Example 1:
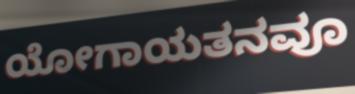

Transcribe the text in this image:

ಯೋಗಾಯತನವೂ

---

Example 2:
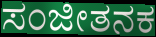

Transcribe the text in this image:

ಸಂಜೀತನಕ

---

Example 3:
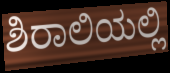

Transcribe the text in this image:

ಶಿರಾಲಿಯಲ್ಲಿ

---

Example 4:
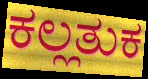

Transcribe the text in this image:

ಕಲ್ಲತುಕ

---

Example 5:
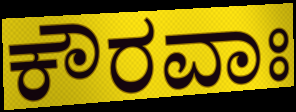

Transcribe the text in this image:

ಕೌರವಾಃ